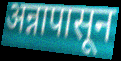
अन्नापासून